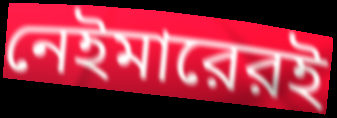
নেইমারেরই